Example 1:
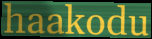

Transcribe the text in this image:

haakodu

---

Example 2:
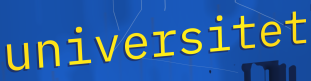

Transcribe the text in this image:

universitet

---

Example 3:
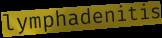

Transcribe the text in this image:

lymphadenitis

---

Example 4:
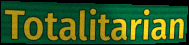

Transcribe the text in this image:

Totalitarian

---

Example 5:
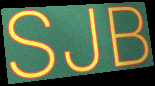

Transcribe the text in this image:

SJB